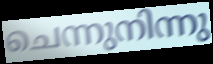
ചെന്നുനിന്നു